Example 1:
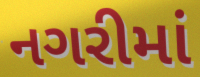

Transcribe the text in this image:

નગરીમાં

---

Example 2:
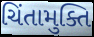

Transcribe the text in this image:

ચિંતામુક્તિ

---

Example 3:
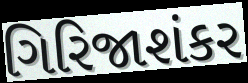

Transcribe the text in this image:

ગિરિજાશંકર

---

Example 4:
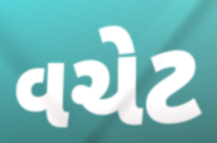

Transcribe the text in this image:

વચેટ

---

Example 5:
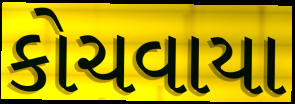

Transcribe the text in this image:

કોચવાયા